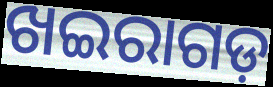
ଖଇରାଗଡ଼